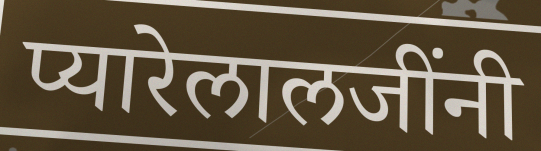
प्यारेलालजींनी